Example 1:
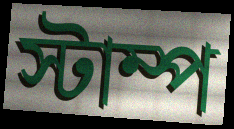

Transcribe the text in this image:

স্টাম্প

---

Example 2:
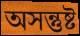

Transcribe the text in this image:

অসন্তুষ্ট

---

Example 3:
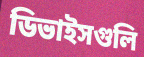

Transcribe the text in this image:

ডিভাইসগুলি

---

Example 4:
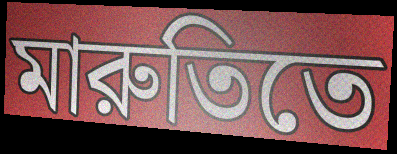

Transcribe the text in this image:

মারুতিতে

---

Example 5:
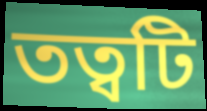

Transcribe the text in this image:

তত্বটি